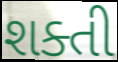
શક્તી